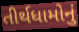
તીર્થધામોનું